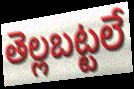
తెల్లబట్టలే